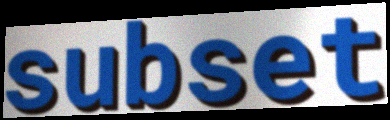
subset